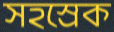
সহস্রেক